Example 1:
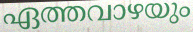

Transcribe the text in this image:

ഏത്തവാഴയും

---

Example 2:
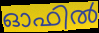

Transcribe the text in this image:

ഓഫിൽ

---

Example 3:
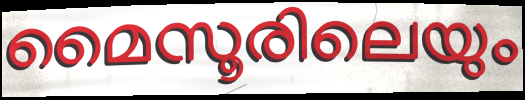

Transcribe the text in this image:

മൈസൂരിലെയും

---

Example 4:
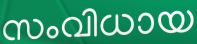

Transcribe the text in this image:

സംവിധായ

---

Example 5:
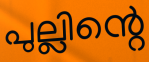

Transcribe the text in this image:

പുല്ലിന്റെ